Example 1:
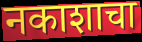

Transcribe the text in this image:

नकाशाचा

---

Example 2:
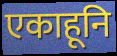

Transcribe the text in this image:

एकाहूनि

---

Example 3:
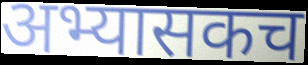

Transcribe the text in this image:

अभ्यासकच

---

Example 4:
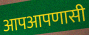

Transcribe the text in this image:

आपआपणासी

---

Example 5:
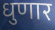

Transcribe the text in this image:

धुणार